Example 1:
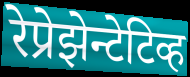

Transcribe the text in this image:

रेप्रेझेन्टेटिव्ह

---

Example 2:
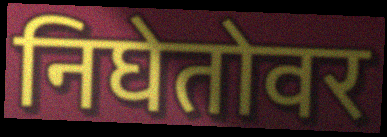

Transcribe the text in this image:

निघेतोवर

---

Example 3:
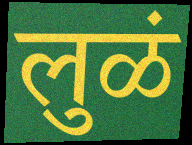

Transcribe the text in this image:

लुळं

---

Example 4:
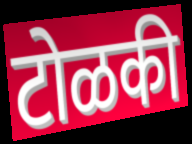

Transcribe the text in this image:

टोळकी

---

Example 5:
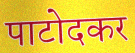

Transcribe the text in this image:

पाटोदकर